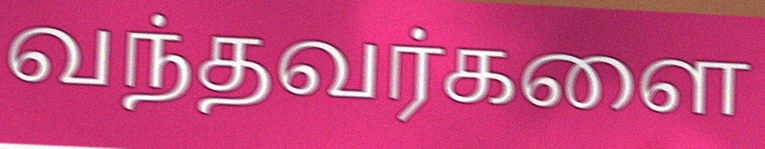
வந்தவர்களை